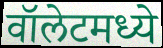
वॉलेटमध्ये